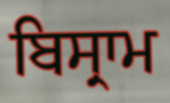
ਬਿਸ੍ਰਾਮ